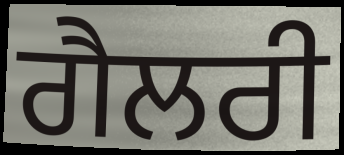
ਗੈਲਰੀ